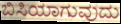
ಬಿಸಿಯಾಗುವುದು